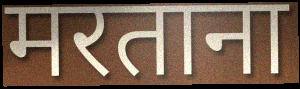
मरताना